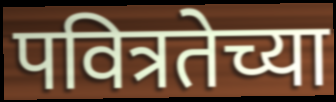
पवित्रतेच्या